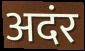
अदंर